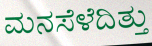
ಮನಸೆಳೆದಿತ್ತು